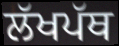
ਲੱਖਪੱਥ